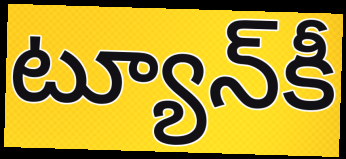
ట్యూన్‌కీ